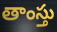
తాంస్తు